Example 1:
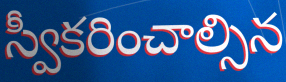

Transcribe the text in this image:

స్వీకరించాల్సిన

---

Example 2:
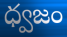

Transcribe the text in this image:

ధ్వజం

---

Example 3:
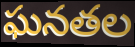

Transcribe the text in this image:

ఘనతల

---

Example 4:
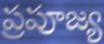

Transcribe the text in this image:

ప్రపూజ్య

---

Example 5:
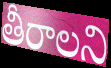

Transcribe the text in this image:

తీరాలని